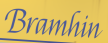
Bramhin